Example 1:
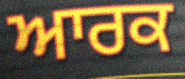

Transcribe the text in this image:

ਆਰਕ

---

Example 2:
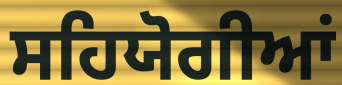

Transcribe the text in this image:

ਸਹਿਯੋਗੀਆਂ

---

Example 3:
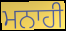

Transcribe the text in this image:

ਮਨਾਹੀ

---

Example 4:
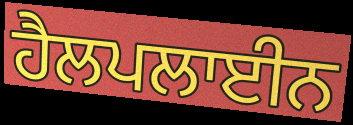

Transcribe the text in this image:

ਹੈਲਪਲਾਈਨ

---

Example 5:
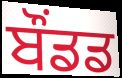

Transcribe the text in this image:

ਬੌਂਡਡ